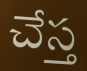
చేస్త